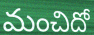
మంచిదో